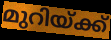
മുറിയ്ക്ക്